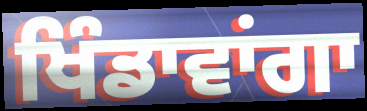
ਖਿੰਡਾਵਾਂਗਾ